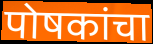
पोषकांचा